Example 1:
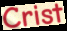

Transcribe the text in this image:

Crist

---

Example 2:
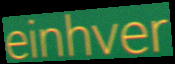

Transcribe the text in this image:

einhver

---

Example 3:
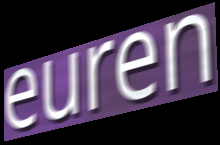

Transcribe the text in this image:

euren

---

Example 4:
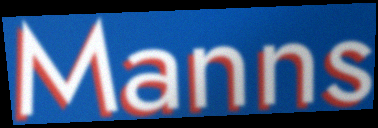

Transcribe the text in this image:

Manns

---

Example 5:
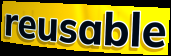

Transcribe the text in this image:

reusable